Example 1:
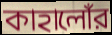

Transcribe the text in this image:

কাহালোঁর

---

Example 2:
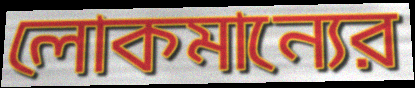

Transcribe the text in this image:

লোকমান্যের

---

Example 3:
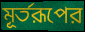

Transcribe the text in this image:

মূর্তরূপের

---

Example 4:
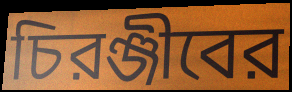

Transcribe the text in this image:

চিরঞ্জীবের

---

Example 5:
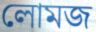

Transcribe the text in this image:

লোমজ